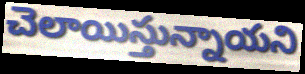
చెలాయిస్తున్నాయని